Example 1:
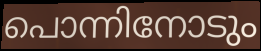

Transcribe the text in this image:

പൊന്നിനോടും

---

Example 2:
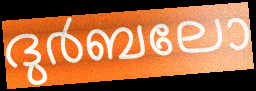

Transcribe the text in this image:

ദുർബലോ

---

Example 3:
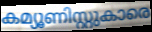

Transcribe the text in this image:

കമ്യൂണിസ്റ്റുകാരെ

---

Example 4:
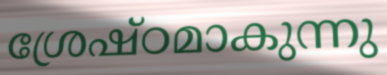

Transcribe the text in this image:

ശ്രേഷ്ഠമാകുന്നു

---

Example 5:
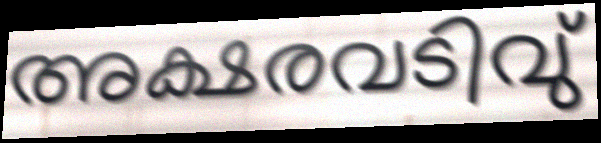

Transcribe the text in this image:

അക്ഷരവടിവു്